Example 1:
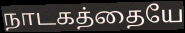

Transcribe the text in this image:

நாடகத்தையே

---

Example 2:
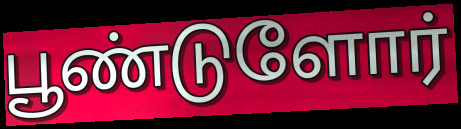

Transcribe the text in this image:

பூண்டுளோர்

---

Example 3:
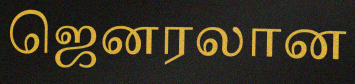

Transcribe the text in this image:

ஜெனரலான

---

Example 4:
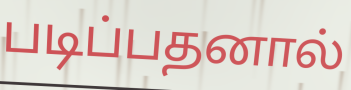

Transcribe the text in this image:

படிப்பதனால்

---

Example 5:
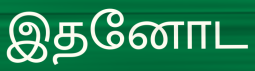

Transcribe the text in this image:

இதனோட